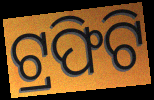
ଟ୍ରଫିଟି